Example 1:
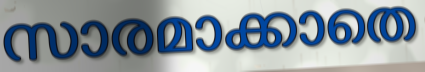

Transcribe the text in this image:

സാരമാക്കാതെ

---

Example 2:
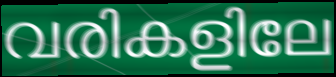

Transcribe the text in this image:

വരികളിലേ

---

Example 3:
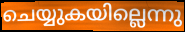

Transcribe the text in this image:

ചെയ്യുകയില്ലെന്നു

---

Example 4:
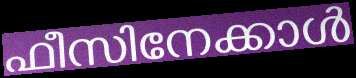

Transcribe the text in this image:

ഫീസിനേക്കാൾ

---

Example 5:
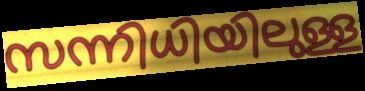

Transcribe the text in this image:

സന്നിധിയിലുള്ള